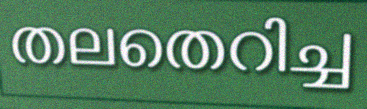
തലതെറിച്ച